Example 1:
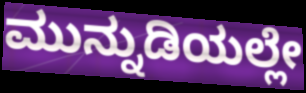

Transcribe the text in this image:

ಮುನ್ನುಡಿಯಲ್ಲೇ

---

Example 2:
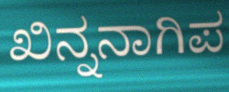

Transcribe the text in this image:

ಖಿನ್ನನಾಗಿಪ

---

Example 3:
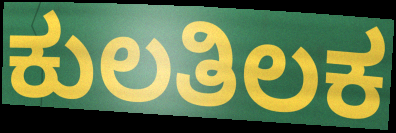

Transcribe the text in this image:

ಕುಲತಿಲಕ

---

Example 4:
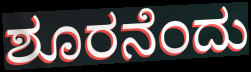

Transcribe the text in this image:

ಶೂರನೆಂದು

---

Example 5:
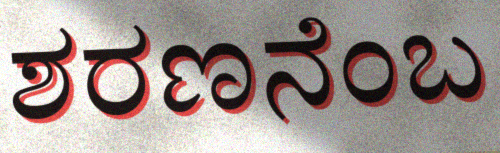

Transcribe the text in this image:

ಶರಣನೆಂಬ